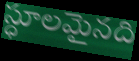
స్ధూలమైనది